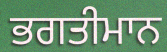
ਭਗਤੀਮਾਨ